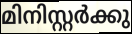
മിനിസ്റ്റർക്കു